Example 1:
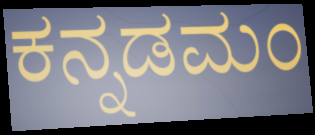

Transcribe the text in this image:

ಕನ್ನಡಮಂ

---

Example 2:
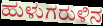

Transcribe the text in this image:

ಹುಳುಗರುಳಿನ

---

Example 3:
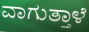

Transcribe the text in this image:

ವಾಗುತ್ತಾಳೆ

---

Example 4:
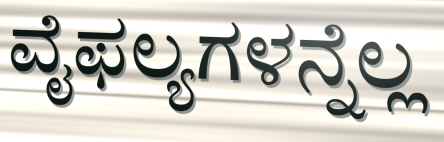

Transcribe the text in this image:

ವೈಫಲ್ಯಗಳನ್ನೆಲ್ಲ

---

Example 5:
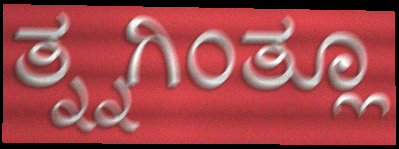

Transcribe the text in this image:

ತ್ನ್ನಗಿಂತ್ಲೂ